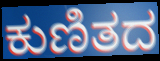
ಕುಣಿತದ